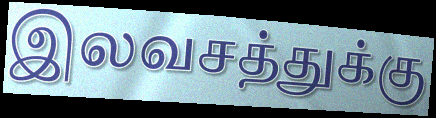
இலவசத்துக்கு